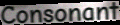
Consonant